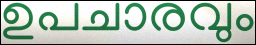
ഉപചാരവും